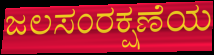
ಜಲಸಂರಕ್ಷಣೆಯ